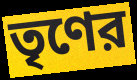
তৃণের